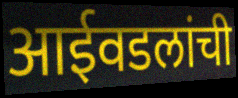
आईवडलांची